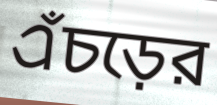
এঁচড়ের